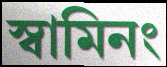
স্বামিনং